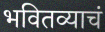
भवितव्याचं